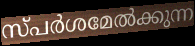
സ്പർശമേൽക്കുന്ന